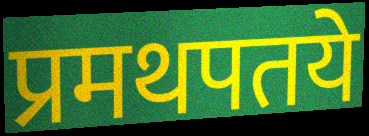
प्रमथपतये